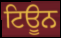
ਟਿਊਨ